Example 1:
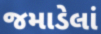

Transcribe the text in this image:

જમાડેલાં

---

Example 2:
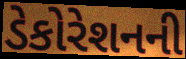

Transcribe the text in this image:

ડેકોરેશનની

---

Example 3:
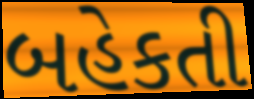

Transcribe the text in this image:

બહેકતી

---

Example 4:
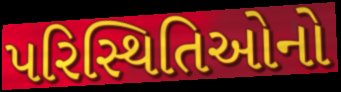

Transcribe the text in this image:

પરિસ્થિતિઓનો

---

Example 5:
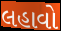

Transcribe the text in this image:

લહાવો